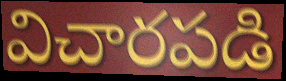
విచారపడి